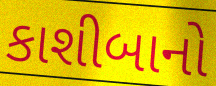
કાશીબાનો